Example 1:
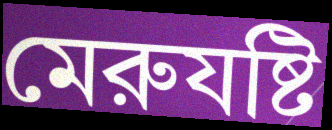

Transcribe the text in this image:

মেরুযষ্টি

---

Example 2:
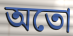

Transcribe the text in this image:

অতো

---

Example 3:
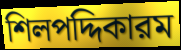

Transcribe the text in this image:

শিলপদ্দিকারম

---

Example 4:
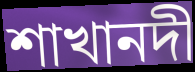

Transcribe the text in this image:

শাখানদী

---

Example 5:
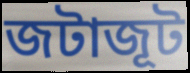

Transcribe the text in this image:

জটাজূট